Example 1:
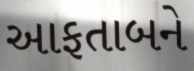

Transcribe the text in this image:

આફતાબને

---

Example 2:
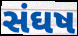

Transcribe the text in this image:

સંઘષ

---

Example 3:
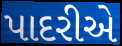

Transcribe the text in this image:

પાદરીએ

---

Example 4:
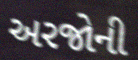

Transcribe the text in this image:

અરજોની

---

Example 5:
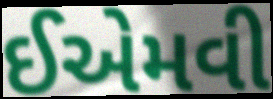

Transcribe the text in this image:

ઈએમવી